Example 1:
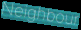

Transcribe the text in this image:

Neighbour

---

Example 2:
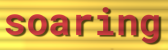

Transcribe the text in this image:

soaring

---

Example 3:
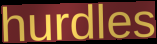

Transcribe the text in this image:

hurdles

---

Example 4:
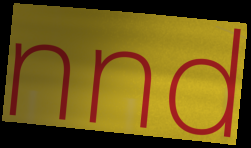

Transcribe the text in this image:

nnd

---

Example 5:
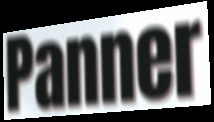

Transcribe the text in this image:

Panner